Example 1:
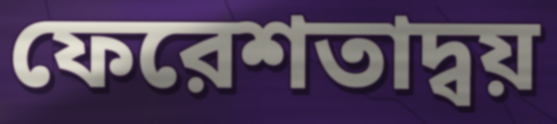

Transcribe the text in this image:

ফেরেশতাদ্বয়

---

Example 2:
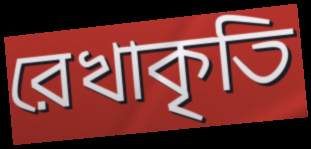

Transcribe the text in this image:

রেখাকৃতি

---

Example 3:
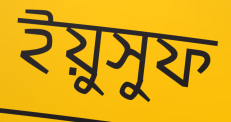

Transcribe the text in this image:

ইয়ুসুফ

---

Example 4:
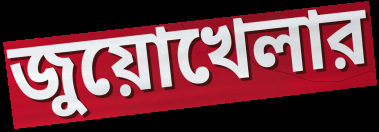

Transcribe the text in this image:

জুয়োখেলার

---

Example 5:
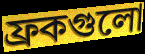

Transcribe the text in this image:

ফ্রকগুলো